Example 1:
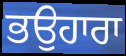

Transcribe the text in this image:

ਭਉਹਾਰਾ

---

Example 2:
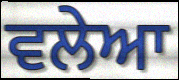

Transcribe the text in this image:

ਵਲੇਆ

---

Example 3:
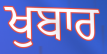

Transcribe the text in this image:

ਖੁਬਾਰ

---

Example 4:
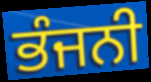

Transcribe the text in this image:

ਭੰਜਨੀ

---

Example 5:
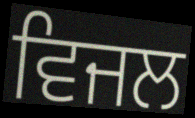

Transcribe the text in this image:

ਵਿਜਲ